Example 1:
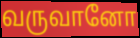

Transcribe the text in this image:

வருவானோ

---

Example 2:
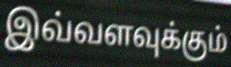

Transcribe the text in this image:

இவ்வளவுக்கும்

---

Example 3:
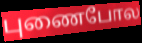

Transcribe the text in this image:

புணைபோல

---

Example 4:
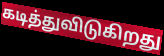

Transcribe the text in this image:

கடித்துவிடுகிறது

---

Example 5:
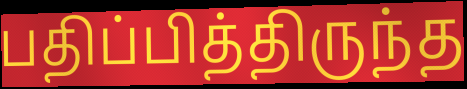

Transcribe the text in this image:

பதிப்பித்திருந்த